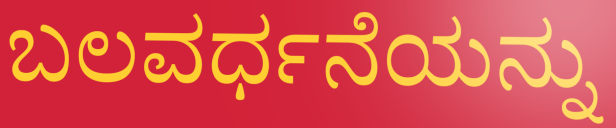
ಬಲವರ್ಧನೆಯನ್ನು